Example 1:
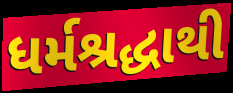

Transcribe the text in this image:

ધર્મશ્રદ્ધાથી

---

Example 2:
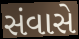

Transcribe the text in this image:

સંવાસે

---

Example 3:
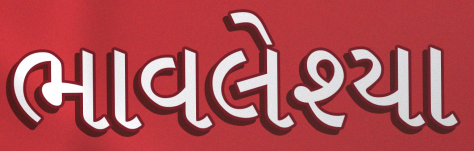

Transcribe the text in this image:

ભાવલેશ્યા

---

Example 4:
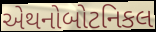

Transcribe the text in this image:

એથનોબોટનિકલ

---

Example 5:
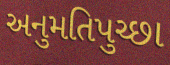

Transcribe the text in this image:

અનુમતિપુચ્છા